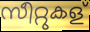
സീറ്റുകള്